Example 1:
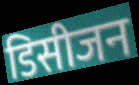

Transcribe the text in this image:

डिसीजन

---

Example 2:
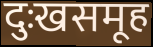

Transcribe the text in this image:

दुःखसमूह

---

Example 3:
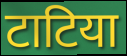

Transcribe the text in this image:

टाटिया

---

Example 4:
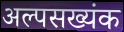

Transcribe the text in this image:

अल्पसख्यंक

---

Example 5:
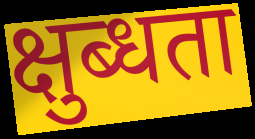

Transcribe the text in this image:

क्षुब्धता